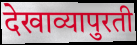
देखाव्यापुरती